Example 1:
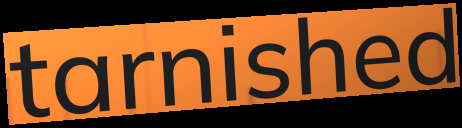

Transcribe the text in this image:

tarnished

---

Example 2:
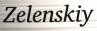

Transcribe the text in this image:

Zelenskiy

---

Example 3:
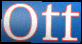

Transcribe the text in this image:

Ott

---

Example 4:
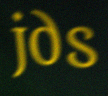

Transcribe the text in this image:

jds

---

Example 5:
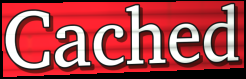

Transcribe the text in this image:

Cached